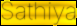
Sathiya